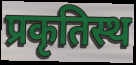
प्रकृतिस्थ